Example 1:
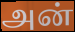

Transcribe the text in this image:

அன்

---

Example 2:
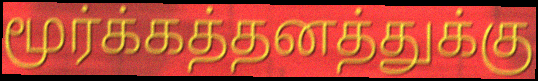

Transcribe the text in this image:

மூர்க்கத்தனத்துக்கு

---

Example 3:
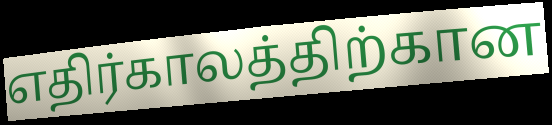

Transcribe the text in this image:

எதிர்காலத்திற்கான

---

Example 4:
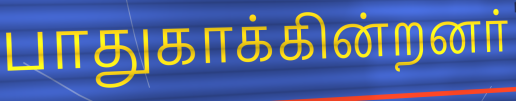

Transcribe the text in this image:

பாதுகாக்கின்றனர்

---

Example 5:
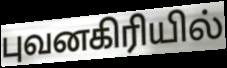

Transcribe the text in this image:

புவனகிரியில்